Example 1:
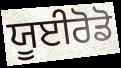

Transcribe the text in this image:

ਯੂਈਰੋਡੋ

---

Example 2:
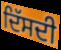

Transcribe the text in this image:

ਦਿੱਸਦੀ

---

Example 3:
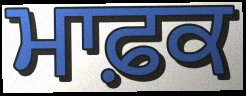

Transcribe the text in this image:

ਮਾਫ਼ਕ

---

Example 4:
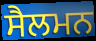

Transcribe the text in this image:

ਸੈਲਮਨ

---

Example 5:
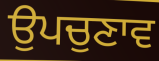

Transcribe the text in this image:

ਉਪਚੁਣਾਵ